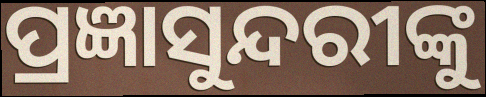
ପ୍ରଜ୍ଞାସୁନ୍ଦରୀଙ୍କୁ